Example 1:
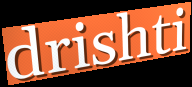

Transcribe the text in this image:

drishti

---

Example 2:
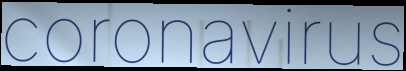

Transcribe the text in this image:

coronavirus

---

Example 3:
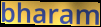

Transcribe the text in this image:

bharam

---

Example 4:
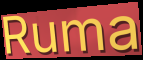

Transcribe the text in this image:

Ruma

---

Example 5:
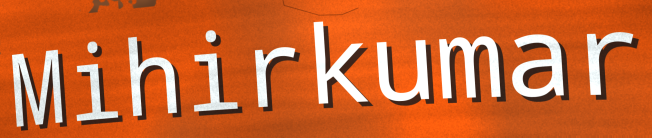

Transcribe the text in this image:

Mihirkumar